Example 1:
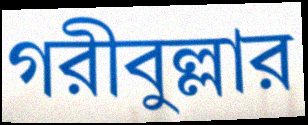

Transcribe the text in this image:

গরীবুল্লার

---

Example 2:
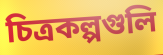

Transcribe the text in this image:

চিত্রকল্পগুলি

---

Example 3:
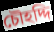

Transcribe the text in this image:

চৌহদ্দি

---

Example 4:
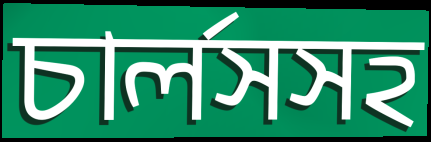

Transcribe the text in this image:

চার্লসসহ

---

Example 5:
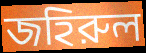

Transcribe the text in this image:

জহিরুল